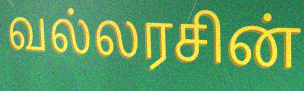
வல்லரசின்